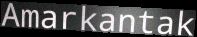
Amarkantak